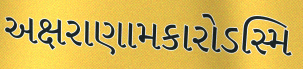
અક્ષરાણામકારોઽસ્મિ